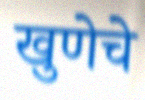
खुणेचे